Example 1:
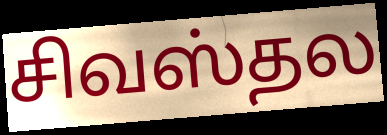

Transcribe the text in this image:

சிவஸ்தல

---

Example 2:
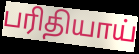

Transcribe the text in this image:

பரிதியாய்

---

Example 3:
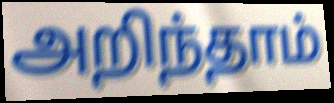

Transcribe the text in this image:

அறிந்தாம்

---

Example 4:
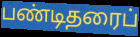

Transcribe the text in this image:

பண்டிதரைப்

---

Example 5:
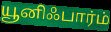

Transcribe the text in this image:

யூனிஃபார்ம்